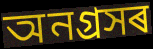
অনগ্ৰসৰ